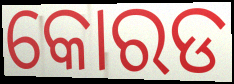
କୋରଡ